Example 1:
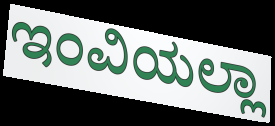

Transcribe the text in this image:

ಇಂವಿಯಲ್ಲಾ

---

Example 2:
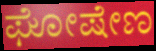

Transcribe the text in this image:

ಘೋಷೇಣ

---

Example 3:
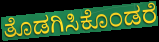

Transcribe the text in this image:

ತೊಡಗಿಸಿಕೊಂಡರೆ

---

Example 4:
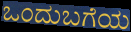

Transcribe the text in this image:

ಒಂದುಬಗೆಯ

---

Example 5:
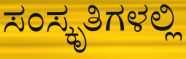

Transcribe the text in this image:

ಸಂಸ್ಕೃತಿಗಳಲ್ಲಿ